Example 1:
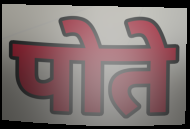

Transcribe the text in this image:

पोते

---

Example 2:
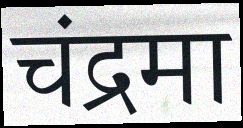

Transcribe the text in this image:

चंद्रमा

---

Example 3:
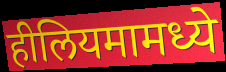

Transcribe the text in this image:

हीलियमामध्ये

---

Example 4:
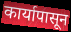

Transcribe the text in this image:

कार्यापासून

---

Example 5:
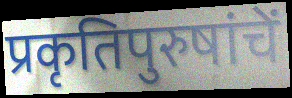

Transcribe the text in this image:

प्रकृतिपुरुषांचें